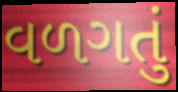
વળગતું